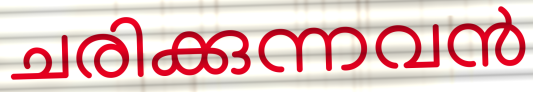
ചരിക്കുന്നവൻ